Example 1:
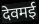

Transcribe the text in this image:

देवमई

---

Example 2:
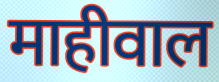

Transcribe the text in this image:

माहीवाल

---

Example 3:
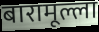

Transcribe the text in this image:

बारामूल्ला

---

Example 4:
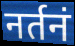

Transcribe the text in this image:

नर्तनं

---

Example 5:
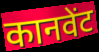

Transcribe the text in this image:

कानवेंट